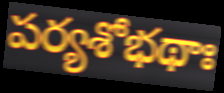
పర్యశోభథాః